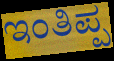
ಇಂತಿಪ್ಪ